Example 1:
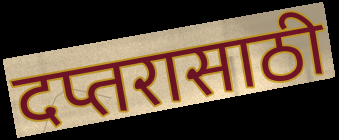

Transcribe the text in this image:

दप्तरासाठी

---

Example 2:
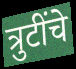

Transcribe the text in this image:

त्रुटींचे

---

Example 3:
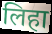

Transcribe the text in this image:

लिहा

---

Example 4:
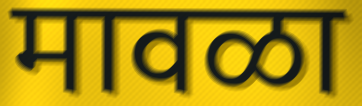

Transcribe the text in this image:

मावळा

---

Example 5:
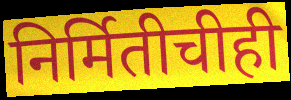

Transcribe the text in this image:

निर्मितीचीही